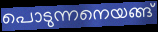
പൊടുന്നനെയങ്ങ്